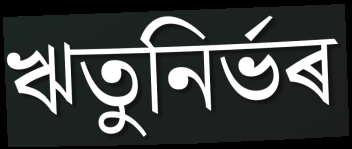
ঋতুনিৰ্ভৰ